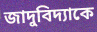
জাদুবিদ্যাকে